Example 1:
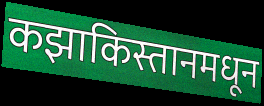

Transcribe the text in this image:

कझाकिस्तानमधून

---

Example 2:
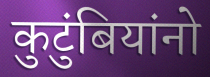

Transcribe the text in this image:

कुटुंबियांनो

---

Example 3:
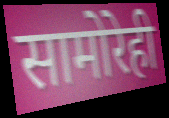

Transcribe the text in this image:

सामोरेही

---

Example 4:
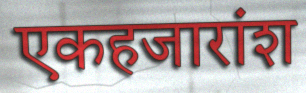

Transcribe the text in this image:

एकहजारांश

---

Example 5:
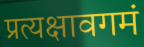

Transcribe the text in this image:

प्रत्यक्षावगमं